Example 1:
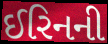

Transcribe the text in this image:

ઈરિનની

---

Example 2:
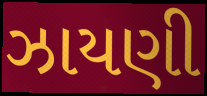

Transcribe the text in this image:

ઝાયણી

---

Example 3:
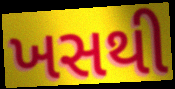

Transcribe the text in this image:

ખસથી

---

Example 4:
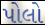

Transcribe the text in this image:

પોલો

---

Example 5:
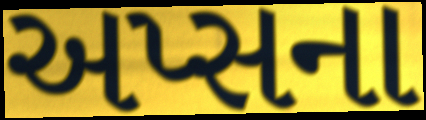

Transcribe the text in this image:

અપ્સના